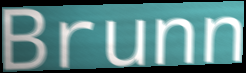
Brunn